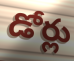
డోర్లు